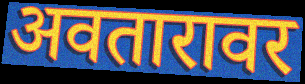
अवतारावर